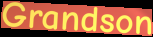
Grandson